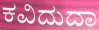
ಕವಿದುದಾ